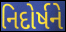
નિદોર્ષને